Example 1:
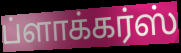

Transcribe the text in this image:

ப்ளாக்கர்ஸ்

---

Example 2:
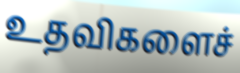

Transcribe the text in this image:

உதவிகளைச்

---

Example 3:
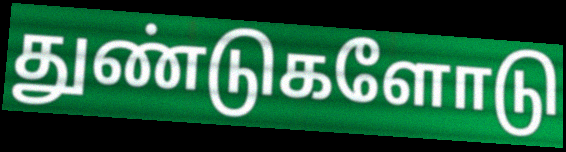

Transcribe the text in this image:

துண்டுகளோடு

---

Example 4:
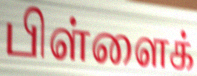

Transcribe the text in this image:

பிள்ளைக்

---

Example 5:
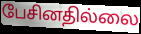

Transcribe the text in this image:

பேசினதில்லை